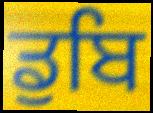
ਡੁਬਿ